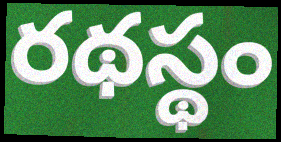
రథస్థం